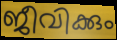
ജീവിക്കും